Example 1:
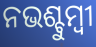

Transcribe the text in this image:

ନଭଶ୍ଚୁମ୍ବୀ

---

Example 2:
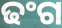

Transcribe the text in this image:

ଢଂଗ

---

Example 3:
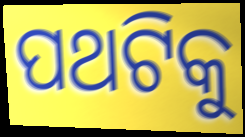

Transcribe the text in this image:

ପଥଟିକୁ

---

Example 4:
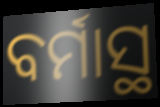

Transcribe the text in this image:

ବର୍ମାସ୍ଥ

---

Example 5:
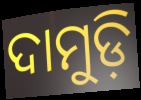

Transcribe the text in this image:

ଦାମୁଡ଼ି